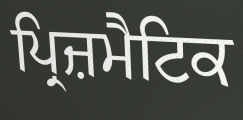
ਪ੍ਰਿਜ਼ਮੈਟਿਕ